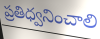
ప్రతిధ్వనించాలి